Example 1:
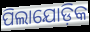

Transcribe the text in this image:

ପିଲାଯୋଡ଼ିକ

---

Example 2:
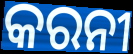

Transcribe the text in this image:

କରନୀ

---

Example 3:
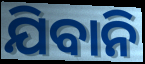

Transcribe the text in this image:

ଯିବାନି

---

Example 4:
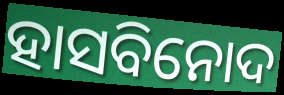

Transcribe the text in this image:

ହାସବିନୋଦ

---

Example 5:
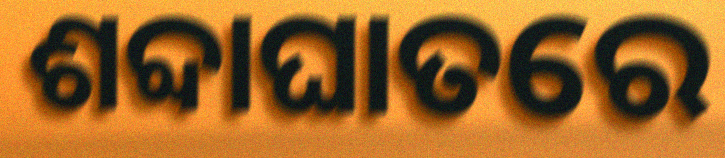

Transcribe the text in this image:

ଶବ୍ଦାଘାତରେ